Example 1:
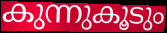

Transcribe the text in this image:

കുന്നുകൂടും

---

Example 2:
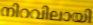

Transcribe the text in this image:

നിറവിലായി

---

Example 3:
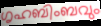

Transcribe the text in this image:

ഗൃഹബിംബവും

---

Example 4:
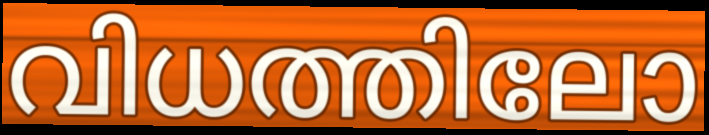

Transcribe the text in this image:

വിധത്തിലോ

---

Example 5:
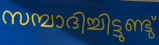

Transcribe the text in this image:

സമ്പാദിച്ചിട്ടുണ്ടു്